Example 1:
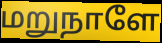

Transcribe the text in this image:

மறுநாளே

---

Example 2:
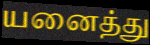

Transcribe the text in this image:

யனைத்து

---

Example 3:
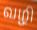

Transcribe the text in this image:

வழி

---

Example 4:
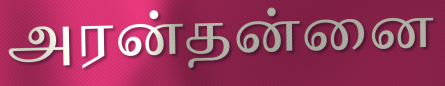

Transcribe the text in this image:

அரன்தன்னை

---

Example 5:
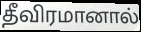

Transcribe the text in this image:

தீவிரமானால்